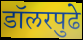
डॉलरपुढे